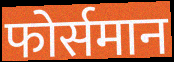
फोर्समान